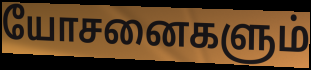
யோசனைகளும்